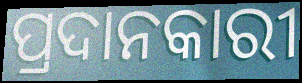
ପ୍ରଦାନକାରୀ